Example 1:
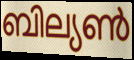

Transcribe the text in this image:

ബില്യൺ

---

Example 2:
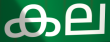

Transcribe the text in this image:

കല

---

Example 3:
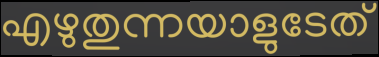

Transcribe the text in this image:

എഴുതുന്നയാളുടേത്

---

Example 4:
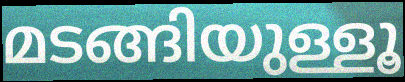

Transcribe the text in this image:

മടങ്ങിയുള്ളൂ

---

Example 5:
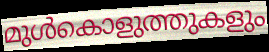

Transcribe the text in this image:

മുൾകൊളുത്തുകളും